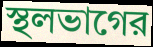
স্থলভাগের